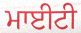
ਮਾਈਟੀ